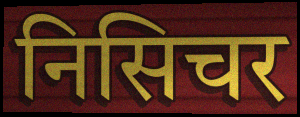
निसिचर